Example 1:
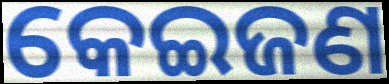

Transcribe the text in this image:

କେଇଜଣ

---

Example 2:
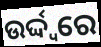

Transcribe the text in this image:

ଉର୍ଦ୍ଦ୍ୱରେ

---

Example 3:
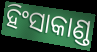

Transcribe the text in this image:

ହିଂସାକାଣ୍ଡ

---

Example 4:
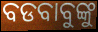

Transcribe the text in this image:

ବଡବାବୁଙ୍କୁ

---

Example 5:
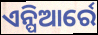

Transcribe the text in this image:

ଏନ୍ପିଆର୍ରେ